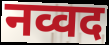
नव्वद